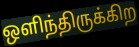
ஒளிந்திருக்கிற